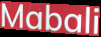
Mabali